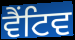
ਵੈਂਟਿਵ